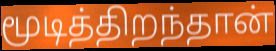
மூடித்திறந்தான்